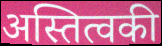
अस्तित्वकी